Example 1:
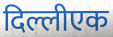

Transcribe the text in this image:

दिल्लीएक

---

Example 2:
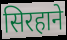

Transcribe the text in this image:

सिरहाने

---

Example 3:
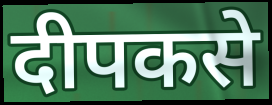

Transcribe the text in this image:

दीपकसे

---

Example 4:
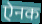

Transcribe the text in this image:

ऐनक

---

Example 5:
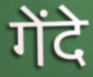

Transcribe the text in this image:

गेंदे